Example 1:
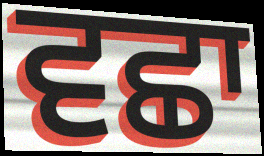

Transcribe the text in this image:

ਵਛਾ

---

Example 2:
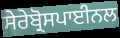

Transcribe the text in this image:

ਸੇਰੇਬ੍ਰੋਸਪਾਈਨਲ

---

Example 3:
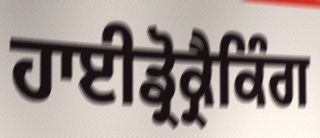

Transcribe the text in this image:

ਹਾਈਡ੍ਰੋਕ੍ਰੈਕਿੰਗ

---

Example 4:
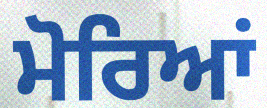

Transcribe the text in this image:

ਮੋਰਿਆਂ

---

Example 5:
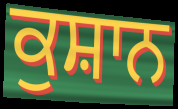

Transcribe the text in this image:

ਕੁਸ਼ਾਨ